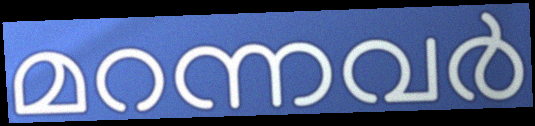
മറന്നവർ